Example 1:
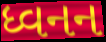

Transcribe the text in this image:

ધ્વનન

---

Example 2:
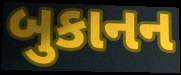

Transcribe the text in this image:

બુકાનન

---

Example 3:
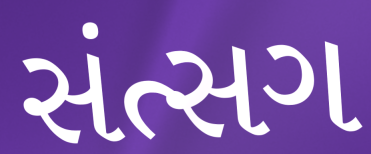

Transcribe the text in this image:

સંત્સગ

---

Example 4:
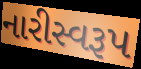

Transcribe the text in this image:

નારીસ્વરૂપ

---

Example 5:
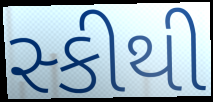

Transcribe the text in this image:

સ્કીથી